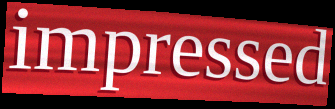
impressed